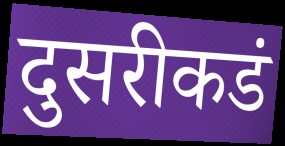
दुसरीकडं